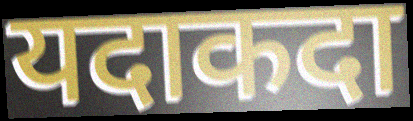
यदाकदा